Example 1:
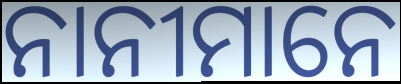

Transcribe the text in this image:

ନାନୀମାନେ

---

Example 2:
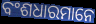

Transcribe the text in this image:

ବଂଶଧାରମାନେ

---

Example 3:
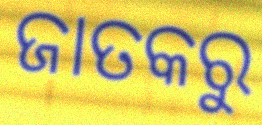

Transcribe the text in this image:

ଜାତକରୁ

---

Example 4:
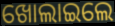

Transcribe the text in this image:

ଖୋଲାଇଲେ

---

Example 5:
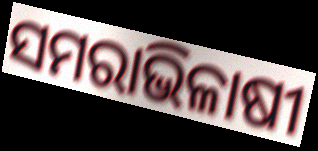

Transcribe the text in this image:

ସମରାଭିଳାଷୀ